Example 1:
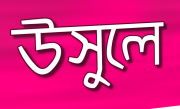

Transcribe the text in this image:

উসুলে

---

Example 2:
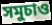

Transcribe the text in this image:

সমুচাও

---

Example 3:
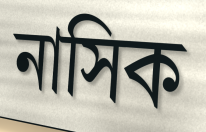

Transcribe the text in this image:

নাসিক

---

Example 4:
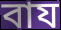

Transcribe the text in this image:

বায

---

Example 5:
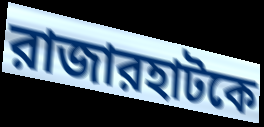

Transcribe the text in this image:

রাজারহাটকে